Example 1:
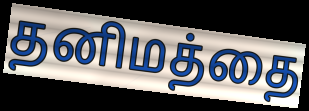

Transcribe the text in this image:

தனிமத்தை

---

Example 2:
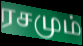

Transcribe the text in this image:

ரசமும்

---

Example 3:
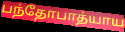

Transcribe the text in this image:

பந்தோபாத்யாய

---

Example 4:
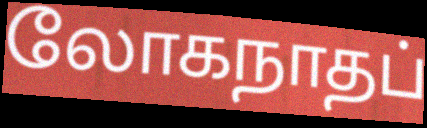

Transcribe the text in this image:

லோகநாதப்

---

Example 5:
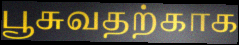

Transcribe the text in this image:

பூசுவதற்காக